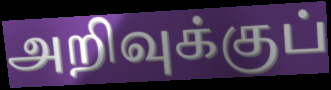
அறிவுக்குப்